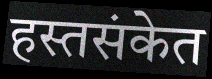
हस्तसंकेत